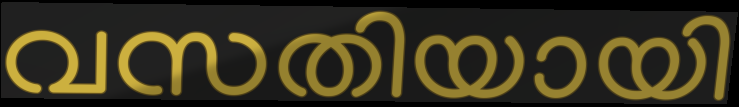
വസതിയായി